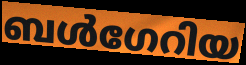
ബൾഗേറിയ